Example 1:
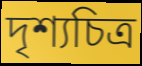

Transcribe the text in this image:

দৃশ্যচিত্র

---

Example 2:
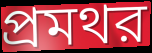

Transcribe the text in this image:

প্রমথর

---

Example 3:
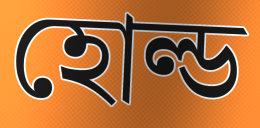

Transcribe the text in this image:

হোল্ড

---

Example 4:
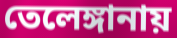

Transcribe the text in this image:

তেলেঙ্গানায়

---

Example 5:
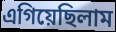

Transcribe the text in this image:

এগিয়েছিলাম